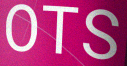
OTS